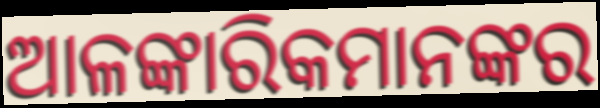
ଆଳଙ୍କାରିକମାନଙ୍କର